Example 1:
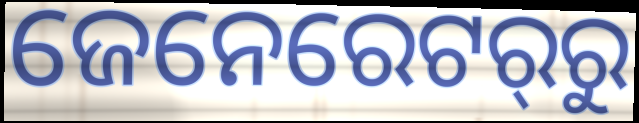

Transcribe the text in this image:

ଜେନେରେଟର୍‌ରୁ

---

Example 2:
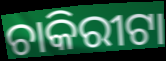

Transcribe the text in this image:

ଚାକିରୀଟା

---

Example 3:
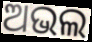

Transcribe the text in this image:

ଅଭଲ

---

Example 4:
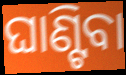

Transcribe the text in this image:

ଘାଣ୍ଟିବା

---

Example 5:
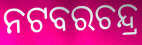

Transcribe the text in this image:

ନଟବରଚନ୍ଦ୍ର